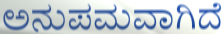
ಅನುಪಮವಾಗಿದೆ